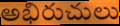
అభిరుచులు